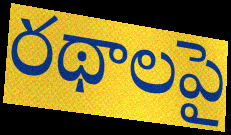
రథాలపై